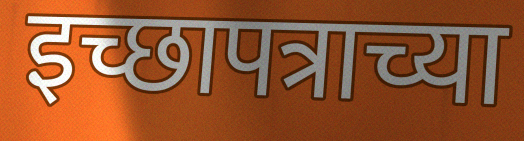
इच्छापत्राच्या